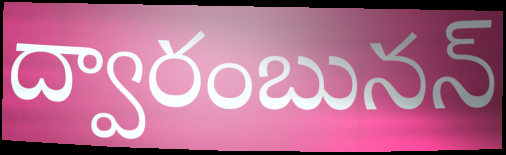
ద్వారంబునన్